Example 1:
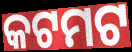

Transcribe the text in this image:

କଟମଟ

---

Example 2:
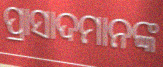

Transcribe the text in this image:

ପ୍ରାସାଦମାନଙ୍କ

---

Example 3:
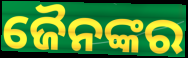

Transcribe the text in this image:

ଜୈନଙ୍କର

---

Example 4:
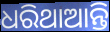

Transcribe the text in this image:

ଧରିଥାଆନ୍ତି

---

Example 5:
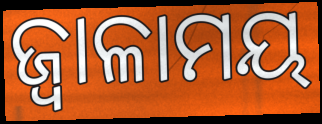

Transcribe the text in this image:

ଜ୍ୱାଳାମୟ